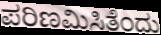
ಪರಿಣಮಿಸಿತೆಂದು